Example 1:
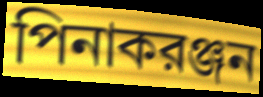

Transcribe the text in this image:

পিনাকরঞ্জন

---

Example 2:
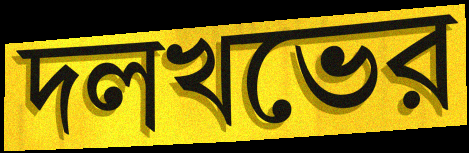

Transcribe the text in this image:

দলখভের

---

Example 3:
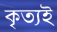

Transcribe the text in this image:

কৃত্যই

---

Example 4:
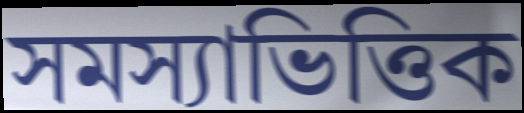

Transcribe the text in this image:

সমস্যাভিত্তিক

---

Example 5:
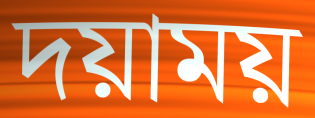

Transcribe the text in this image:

দয়াময়